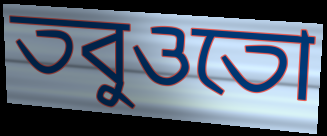
তবুওতো